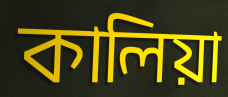
কালিয়া